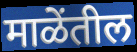
माळेंतील